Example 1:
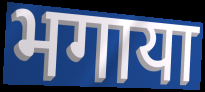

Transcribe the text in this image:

भगाया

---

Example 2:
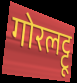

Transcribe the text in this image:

गोरलट्टू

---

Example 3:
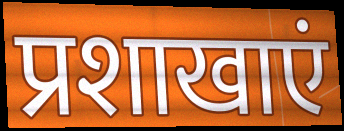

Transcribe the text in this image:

प्रशाखाएं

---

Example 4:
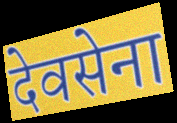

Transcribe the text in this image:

देवसेना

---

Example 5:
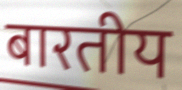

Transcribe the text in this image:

बारतीय